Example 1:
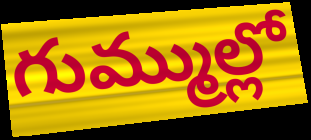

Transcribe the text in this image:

గుమ్ముల్లో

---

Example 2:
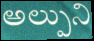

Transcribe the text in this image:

అల్పుని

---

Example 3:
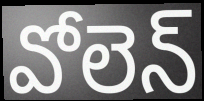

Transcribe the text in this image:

వోలెన్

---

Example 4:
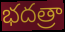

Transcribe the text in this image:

భదత్రా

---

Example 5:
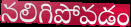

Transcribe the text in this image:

నలిగిపోవడం